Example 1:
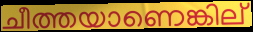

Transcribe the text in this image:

ചീത്തയാണെങ്കില്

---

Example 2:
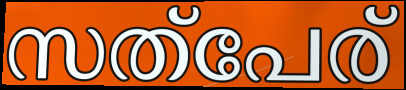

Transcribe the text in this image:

സത്പേര്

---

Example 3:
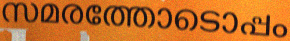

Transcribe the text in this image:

സമരത്തോടൊപ്പം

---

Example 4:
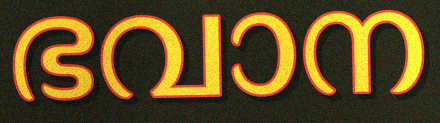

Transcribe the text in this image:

ഭവാന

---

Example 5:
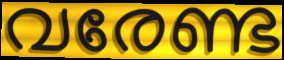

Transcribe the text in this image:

വരേണ്ട